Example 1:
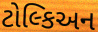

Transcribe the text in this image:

ટોલ્કિઅન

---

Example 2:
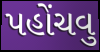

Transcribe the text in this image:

પહોંચવુ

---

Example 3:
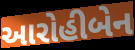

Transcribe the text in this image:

આરોહીબેન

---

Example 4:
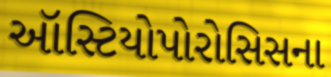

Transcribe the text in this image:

ઑસ્ટિયોપોરોસિસના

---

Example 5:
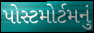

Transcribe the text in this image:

પોસ્ટમોર્ટમનું